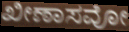
ಖೀಣಾಸವೋ